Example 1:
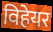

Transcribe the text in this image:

विहेयर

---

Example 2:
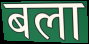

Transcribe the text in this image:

बला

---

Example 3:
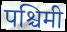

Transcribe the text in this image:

पश्चिमी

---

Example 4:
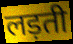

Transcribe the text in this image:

लड़ती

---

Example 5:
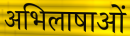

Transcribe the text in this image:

अभिलाषाओं